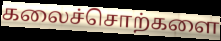
கலைச்சொற்களை